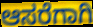
ಆಸರೆಗಾಗಿ